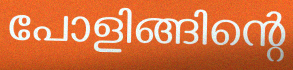
പോളിങ്ങിന്റെ